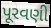
પૂરવણી